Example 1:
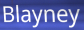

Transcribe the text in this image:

Blayney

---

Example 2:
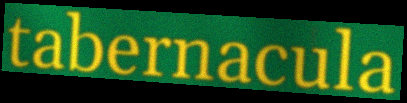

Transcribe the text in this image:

tabernacula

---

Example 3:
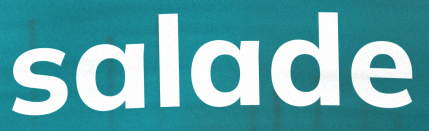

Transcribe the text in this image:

salade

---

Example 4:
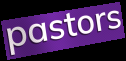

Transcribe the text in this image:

pastors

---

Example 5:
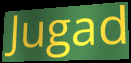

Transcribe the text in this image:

Jugad